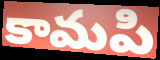
కామపి